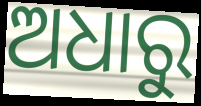
ଅଧାରୁ